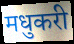
मधुकरी